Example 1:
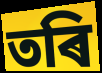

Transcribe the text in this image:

তৰি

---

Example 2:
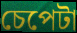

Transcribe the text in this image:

চেপেটা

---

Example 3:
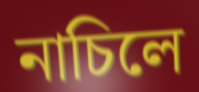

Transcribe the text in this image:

নাচিলে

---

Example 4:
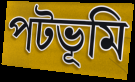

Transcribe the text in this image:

পটভূমি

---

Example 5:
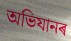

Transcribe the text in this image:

অভিযানৰ